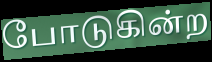
போடுகின்ற